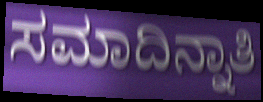
ಸಮಾದಿನ್ನಾತಿ